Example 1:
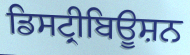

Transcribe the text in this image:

ਡਿਸਟ੍ਰੀਬਿਊਸ਼ਨ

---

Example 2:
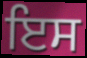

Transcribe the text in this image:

ਇਸ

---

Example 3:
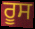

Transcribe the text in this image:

ਰੂਸ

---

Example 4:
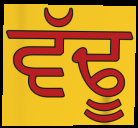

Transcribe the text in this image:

ਵੱਢੂ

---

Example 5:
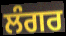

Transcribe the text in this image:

ਲੰਗਰ